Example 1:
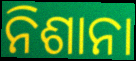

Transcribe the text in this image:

ନିଶାନା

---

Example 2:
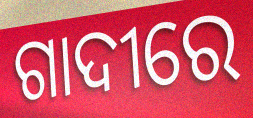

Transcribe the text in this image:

ଗାଦୀରେ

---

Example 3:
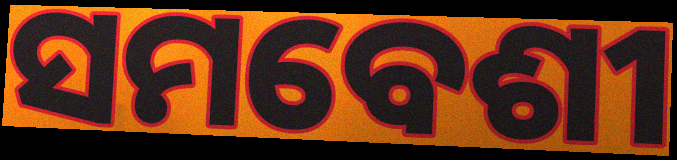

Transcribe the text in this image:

ସମବେଶୀ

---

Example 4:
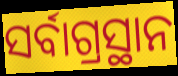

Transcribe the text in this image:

ସର୍ବାଗ୍ରସ୍ଥାନ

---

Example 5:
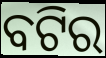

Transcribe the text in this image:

ବଟିର